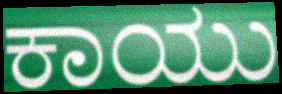
ಕಾಯು